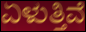
ಏಳುತ್ತಿವೆ